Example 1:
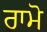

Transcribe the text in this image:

ਰਾਮੋ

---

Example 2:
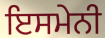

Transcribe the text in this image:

ਇਸਮੇਨੀ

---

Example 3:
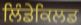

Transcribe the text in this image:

ਲਿੰਡੇਕਿਲਡ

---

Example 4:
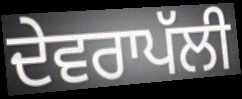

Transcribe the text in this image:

ਦੇਵਰਾਪੱਲੀ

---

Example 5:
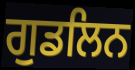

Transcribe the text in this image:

ਗੁਡਲਿਨ